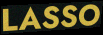
LASSO